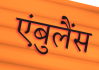
एंबुलैंस